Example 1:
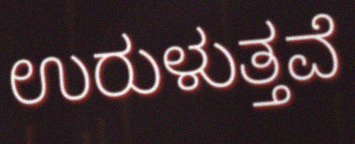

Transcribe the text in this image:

ಉರುಳುತ್ತವೆ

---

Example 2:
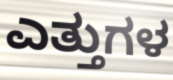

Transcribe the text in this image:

ಎತ್ತುಗಳ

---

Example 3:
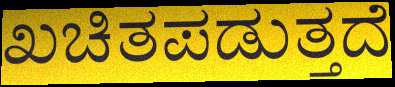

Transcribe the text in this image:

ಖಚಿತಪಡುತ್ತದೆ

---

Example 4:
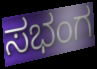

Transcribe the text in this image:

ಸಭಂಗ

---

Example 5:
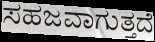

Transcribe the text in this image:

ಸಹಜವಾಗುತ್ತದೆ